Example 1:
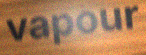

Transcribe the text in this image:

vapour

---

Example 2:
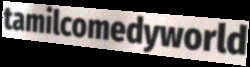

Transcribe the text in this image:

tamilcomedyworld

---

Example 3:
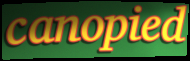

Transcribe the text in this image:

canopied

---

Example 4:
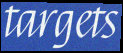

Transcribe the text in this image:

targets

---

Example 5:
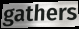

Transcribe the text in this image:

gathers